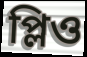
প্লিও